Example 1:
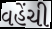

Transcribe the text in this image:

વહેંચી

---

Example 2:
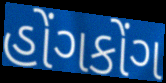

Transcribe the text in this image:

હોંગકોંગ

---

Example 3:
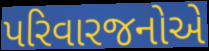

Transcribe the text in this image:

પરિવારજનોએ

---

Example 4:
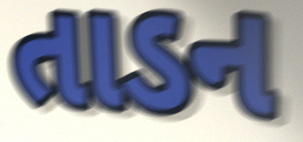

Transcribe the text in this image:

તાડન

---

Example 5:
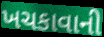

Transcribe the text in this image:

ખચકાવાની